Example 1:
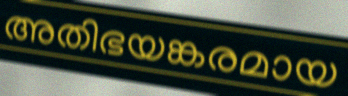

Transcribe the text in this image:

അതിഭയങ്കരമായ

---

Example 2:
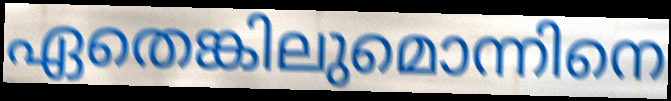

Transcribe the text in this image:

ഏതെങ്കിലുമൊന്നിനെ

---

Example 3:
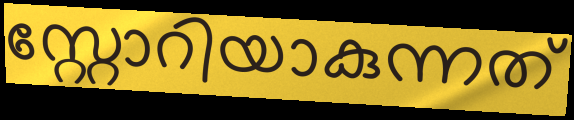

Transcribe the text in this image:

സ്റ്റോറിയാകുന്നത്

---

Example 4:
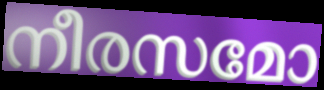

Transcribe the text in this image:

നീരസമോ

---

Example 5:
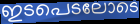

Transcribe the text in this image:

ഇടപെടലോടെ